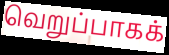
வெறுப்பாகக்